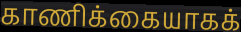
காணிக்கையாகக்